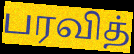
பரவித்